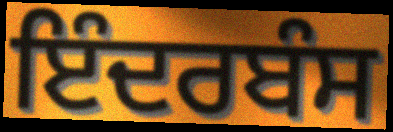
ਇੰਦਰਬੰਸ